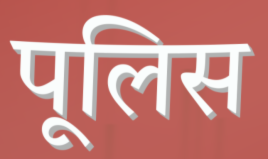
पूलिस